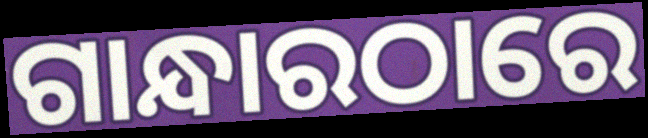
ଗାନ୍ଧାରଠାରେ